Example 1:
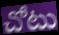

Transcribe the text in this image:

చోటు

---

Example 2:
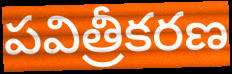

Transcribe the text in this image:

పవిత్రీకరణ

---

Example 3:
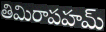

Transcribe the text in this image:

తిమిరాపహమ్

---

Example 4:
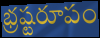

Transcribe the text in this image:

భ్రష్టరూపం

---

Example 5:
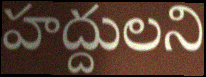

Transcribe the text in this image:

హద్దులని